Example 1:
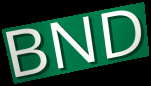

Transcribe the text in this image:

BND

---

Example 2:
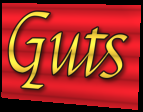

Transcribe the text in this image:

Guts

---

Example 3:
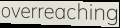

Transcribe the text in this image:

overreaching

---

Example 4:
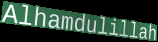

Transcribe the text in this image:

Alhamdulillah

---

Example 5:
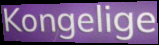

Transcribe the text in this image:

Kongelige